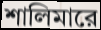
শালিমারে